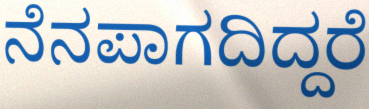
ನೆನಪಾಗದಿದ್ದರೆ